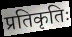
प्रतिकृतिः